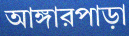
আঙ্গারপাড়া